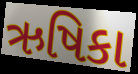
ઋષિકા